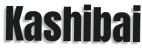
Kashibai